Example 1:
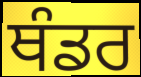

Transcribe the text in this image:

ਥੰਡਰ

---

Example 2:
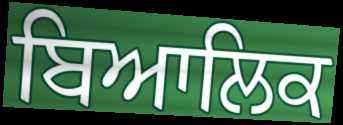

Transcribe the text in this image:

ਬਿਆਲਿਕ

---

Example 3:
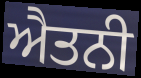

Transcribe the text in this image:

ਐਤਨੀ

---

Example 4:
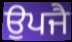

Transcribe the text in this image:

ਉਪਜੈ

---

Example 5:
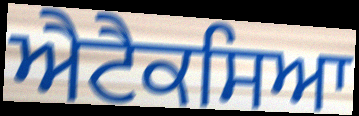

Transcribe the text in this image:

ਐਟੈਕਸਿਆ